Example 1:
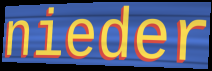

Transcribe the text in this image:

nieder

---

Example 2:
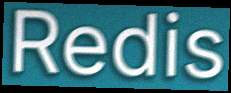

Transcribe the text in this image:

Redis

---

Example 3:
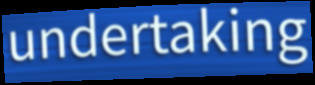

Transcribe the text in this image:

undertaking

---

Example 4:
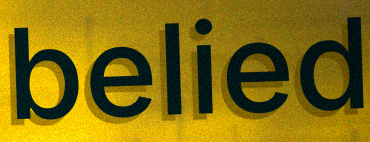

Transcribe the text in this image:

belied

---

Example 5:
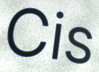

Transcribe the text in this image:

Cis